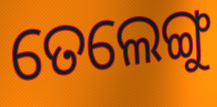
ତେଲେଙ୍ଗୁ